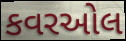
કવરઓલ